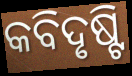
କବିଦୃଷ୍ଟି